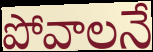
పోవాలనే